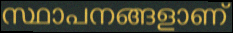
സ്ഥാപനങ്ങളാണ്